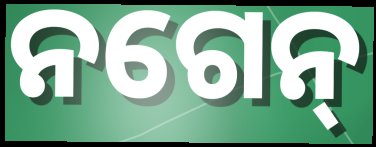
ନଗେନ୍